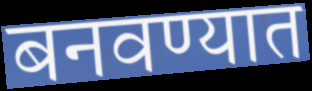
बनवण्यात